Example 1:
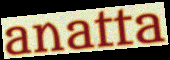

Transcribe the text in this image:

anatta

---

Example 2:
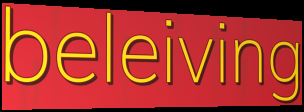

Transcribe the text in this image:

beleiving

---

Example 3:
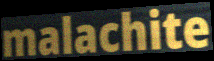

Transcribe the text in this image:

malachite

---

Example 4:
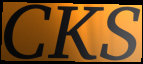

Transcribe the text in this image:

CKS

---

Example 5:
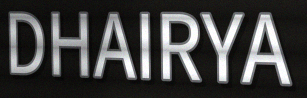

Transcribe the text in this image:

DHAIRYA